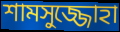
শামসুজ্জোহা